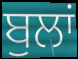
ਬੁਲਾਂ